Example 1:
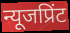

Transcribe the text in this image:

न्यूजप्रिंट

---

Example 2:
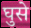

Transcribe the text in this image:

घुसे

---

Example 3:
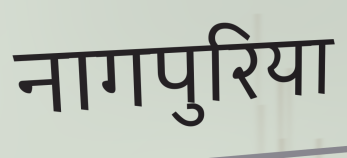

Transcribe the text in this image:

नागपुरिया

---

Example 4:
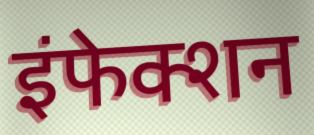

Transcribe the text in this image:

इंफेक्शन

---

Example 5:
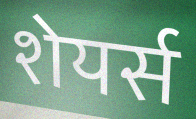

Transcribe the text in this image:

शेयर्स